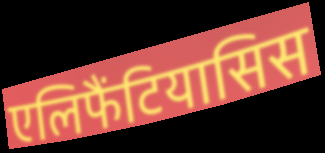
एलिफैंटियासिस